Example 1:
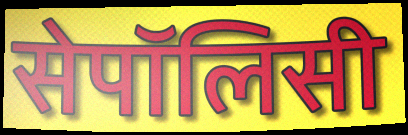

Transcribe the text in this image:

सेपॉलिसी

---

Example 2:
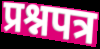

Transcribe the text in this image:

प्रश्नपत्र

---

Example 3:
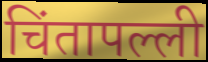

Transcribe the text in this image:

चिंतापल्ली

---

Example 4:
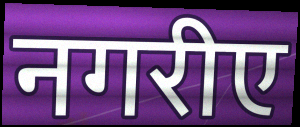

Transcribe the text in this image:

नगरीए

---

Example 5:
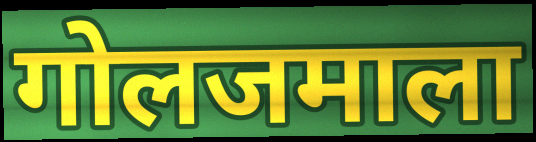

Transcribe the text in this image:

गोलजमाला